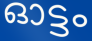
ഓട്ടം